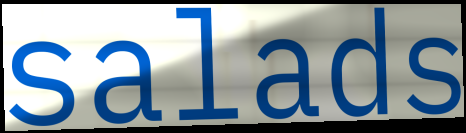
salads